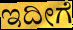
ಇದೀಗೆ